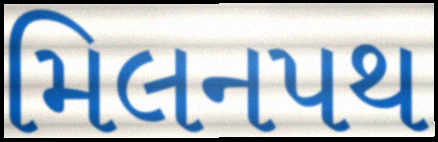
મિલનપથ